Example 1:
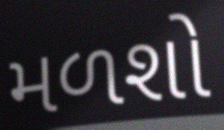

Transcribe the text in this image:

મળશો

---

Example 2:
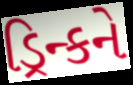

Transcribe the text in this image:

ડ્રિન્કને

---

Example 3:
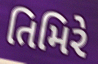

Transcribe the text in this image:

તિમિરે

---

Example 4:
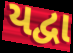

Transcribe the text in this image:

યદ્વા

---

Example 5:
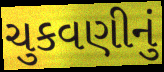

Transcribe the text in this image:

ચુકવણીનું